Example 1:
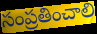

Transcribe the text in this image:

సంప్రతించాలి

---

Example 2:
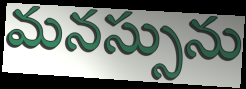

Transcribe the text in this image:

మనస్సును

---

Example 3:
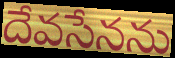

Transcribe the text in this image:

దేవసేనను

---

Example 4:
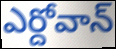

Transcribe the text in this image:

ఎర్దోవాన్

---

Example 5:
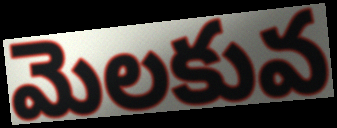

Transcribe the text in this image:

మెలకువ